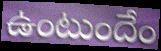
ఉంటుందేం